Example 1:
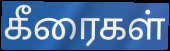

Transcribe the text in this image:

கீரைகள்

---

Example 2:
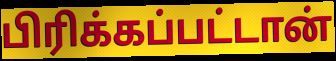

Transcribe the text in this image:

பிரிக்கப்பட்டான்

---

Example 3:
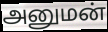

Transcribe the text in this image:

அனுமன்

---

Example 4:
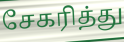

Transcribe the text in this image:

சேகரித்து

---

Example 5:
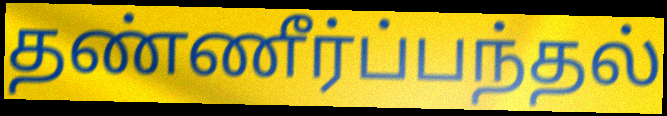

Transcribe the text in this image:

தண்ணீர்ப்பந்தல்